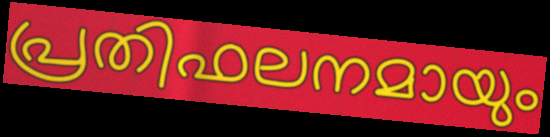
പ്രതിഫലനമായും